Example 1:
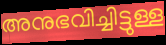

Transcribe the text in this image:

അനുഭവിച്ചിട്ടുള്ള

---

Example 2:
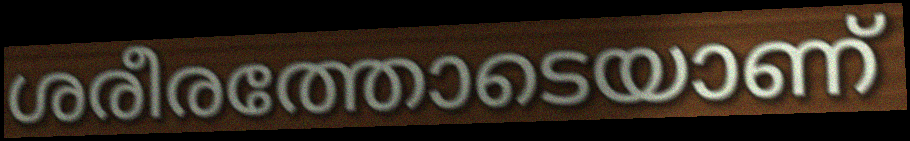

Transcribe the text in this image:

ശരീരത്തോടെയാണ്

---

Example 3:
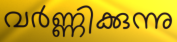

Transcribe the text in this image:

വർണ്ണിക്കുന്നു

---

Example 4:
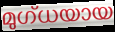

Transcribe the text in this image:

മുഗ്ധയായ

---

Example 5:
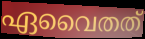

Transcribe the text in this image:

ഏവൈതത്